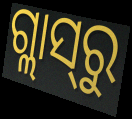
ଗ୍ଲାସ୍‍ରୁ